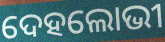
ଦେହଲୋଭୀ